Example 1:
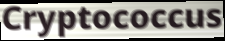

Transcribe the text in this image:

Cryptococcus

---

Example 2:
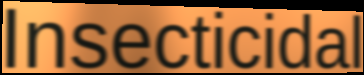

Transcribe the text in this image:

Insecticidal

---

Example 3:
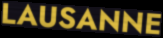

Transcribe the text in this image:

LAUSANNE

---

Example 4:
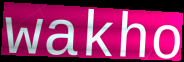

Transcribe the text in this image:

wakho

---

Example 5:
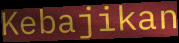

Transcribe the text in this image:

Kebajikan